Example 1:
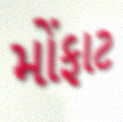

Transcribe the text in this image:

મોંફાટ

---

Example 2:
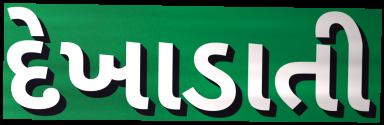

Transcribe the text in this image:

દેખાડાતી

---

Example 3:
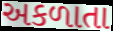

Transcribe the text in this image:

અકળાતા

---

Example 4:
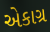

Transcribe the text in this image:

એકાગ્ર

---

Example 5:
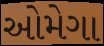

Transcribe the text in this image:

ઓમેગા